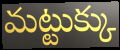
మట్టుక్కు